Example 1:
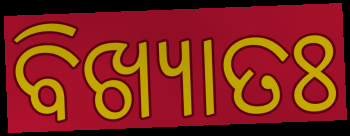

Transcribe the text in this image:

ବିଖ୍ୟାତଃ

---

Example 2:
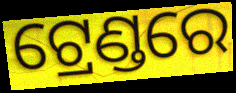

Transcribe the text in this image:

ଟ୍ରେଣ୍ଡରେ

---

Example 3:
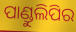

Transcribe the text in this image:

ପାଣ୍ଡୁଲିପିର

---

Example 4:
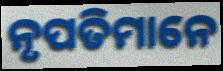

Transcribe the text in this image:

ନୃପତିମାନେ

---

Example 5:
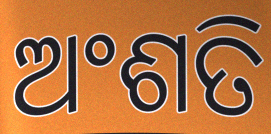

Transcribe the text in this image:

ଅଂଶତି